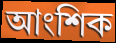
আংশিক